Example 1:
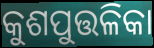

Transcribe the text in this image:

କୁଶପୁତ୍ତଳିକା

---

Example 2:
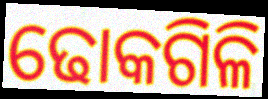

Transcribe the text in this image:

ଢୋକଗିଳି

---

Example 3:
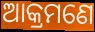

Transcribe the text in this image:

ଆକ୍ରମଣେ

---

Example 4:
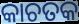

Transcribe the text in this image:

କାଚତକ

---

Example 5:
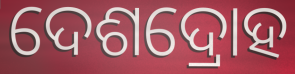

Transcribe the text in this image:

ଦେଶଦ୍ରୋହ